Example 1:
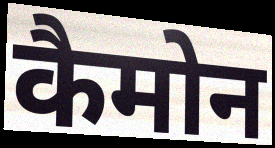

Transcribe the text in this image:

कैमोन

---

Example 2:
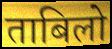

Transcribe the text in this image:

ताबिलो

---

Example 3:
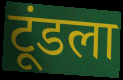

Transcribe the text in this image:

टूंडला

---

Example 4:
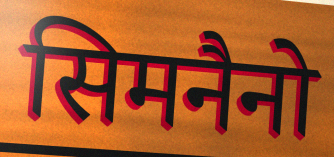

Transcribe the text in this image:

सिमनैनो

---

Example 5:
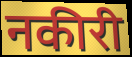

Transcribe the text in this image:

नकीरी